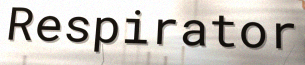
Respirator